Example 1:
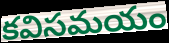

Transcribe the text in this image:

కవిసమయం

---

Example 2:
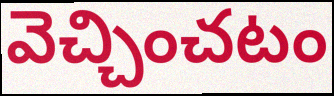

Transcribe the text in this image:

వెచ్చించటం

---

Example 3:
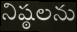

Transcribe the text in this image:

నిష్ఠలను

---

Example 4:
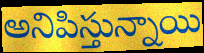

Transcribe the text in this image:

అనిపిస్తున్నాయి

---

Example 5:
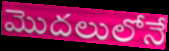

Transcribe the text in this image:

మొదలులోనే